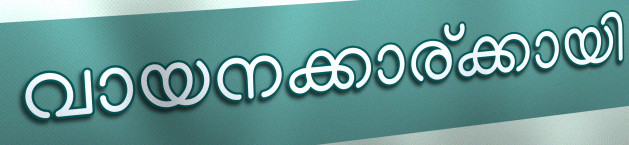
വായനക്കാര്ക്കായി